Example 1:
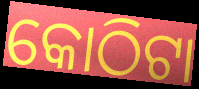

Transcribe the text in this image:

କୋଠିଟା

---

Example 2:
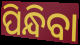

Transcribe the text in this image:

ପିନ୍ଧିବା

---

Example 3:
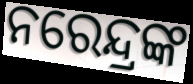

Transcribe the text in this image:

ନରେନ୍ଦ୍ରଙ୍କ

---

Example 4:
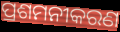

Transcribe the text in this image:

ପ୍ରଶମନୀକରଣ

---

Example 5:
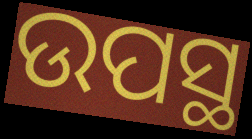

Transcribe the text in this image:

ଉପସ୍ଥ